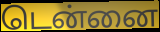
டென்னை